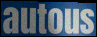
autous